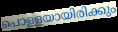
പൊള്ളയായിരിക്കും